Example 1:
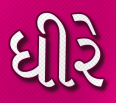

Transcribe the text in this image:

ધીરે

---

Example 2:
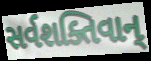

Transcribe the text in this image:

સર્વશક્તિવાન્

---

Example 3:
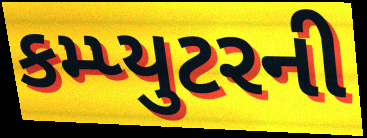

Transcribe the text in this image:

કમ્પ્યુટરની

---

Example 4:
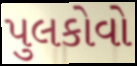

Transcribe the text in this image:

પુલકોવો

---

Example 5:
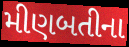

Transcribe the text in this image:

મીણબતીના